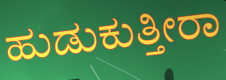
ಹುಡುಕುತ್ತೀರಾ